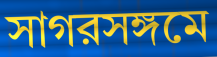
সাগরসঙ্গমে